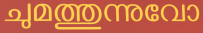
ചുമത്തുന്നുവോ